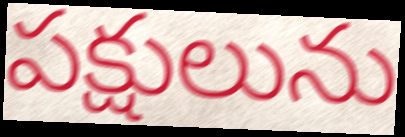
పక్షులును